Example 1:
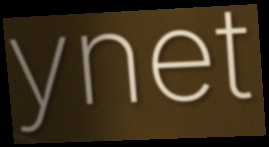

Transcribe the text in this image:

ynet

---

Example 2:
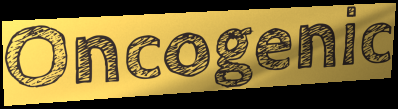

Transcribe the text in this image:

Oncogenic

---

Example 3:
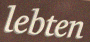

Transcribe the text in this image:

lebten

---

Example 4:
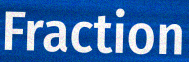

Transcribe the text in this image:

Fraction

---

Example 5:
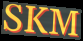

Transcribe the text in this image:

SKM